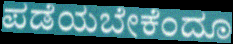
ಪಡೆಯಬೇಕೆಂದೂ